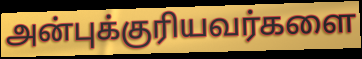
அன்புக்குரியவர்களை